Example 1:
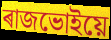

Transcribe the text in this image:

ৰাজভোইয়ে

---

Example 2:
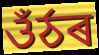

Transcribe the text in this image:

ওঁঠৰ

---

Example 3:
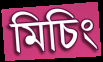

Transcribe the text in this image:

মিচিং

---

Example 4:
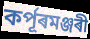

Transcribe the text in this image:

কৰ্পূৰমঞ্জৰী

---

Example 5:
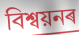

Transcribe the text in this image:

বিশ্বয়নৰ